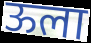
ऊला